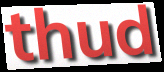
thud